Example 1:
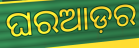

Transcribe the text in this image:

ଘରଆଡ଼ର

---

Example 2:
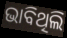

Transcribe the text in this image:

ଭାବିଥିଲି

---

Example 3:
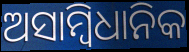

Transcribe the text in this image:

ଅସାମ୍ବିଧାନିକ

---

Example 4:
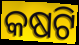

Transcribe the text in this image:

କଷଟି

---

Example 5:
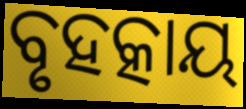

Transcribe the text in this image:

ବୃହତ୍କାୟ